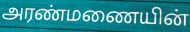
அரண்மணையின்